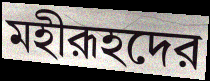
মহীরূহদের